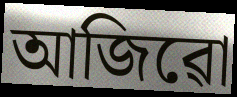
আজিৱো